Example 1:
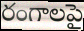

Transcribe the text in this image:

రంగాలపై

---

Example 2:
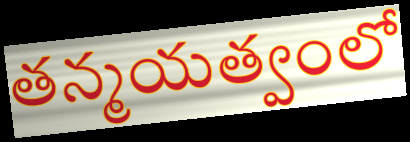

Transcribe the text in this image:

తన్మయత్వంలో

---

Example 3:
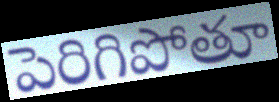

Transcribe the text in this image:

పెరిగిపోతూ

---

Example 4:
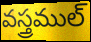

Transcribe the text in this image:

వస్త్రముల్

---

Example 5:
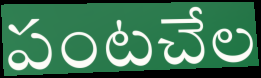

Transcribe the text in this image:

పంటచేల